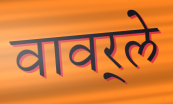
वावर्ले